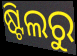
ଷ୍ଟିଲରୁ